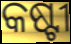
କଷ୍ଟୀ